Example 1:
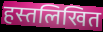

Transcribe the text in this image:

हस्तलिखित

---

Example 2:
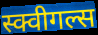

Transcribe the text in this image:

स्क्वीगल्स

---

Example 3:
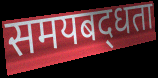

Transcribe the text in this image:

समयबद्धता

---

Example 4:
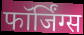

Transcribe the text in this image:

फॉर्जिंग्स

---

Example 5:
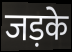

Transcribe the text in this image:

जड़के